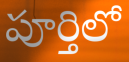
పూర్తిలో